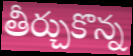
తీర్చుకొన్న